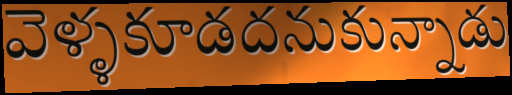
వెళ్ళకూడదనుకున్నాడు